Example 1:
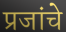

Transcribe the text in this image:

प्रजांचे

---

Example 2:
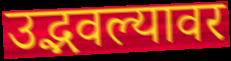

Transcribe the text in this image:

उद्भवल्यावर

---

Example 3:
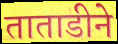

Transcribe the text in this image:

ताताडीने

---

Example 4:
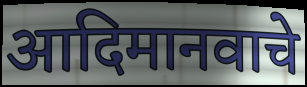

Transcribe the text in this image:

आदिमानवाचे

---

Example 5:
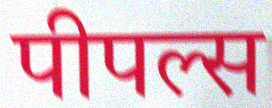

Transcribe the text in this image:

पीपल्स